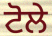
ਟੋਲੇ